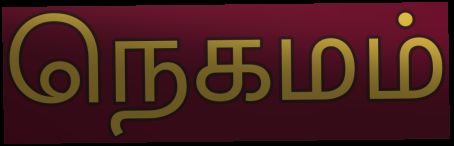
நெகமம்